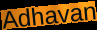
Adhavan